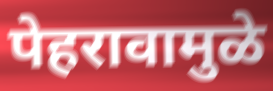
पेहरावामुळे